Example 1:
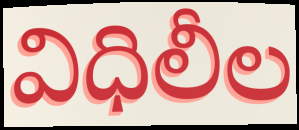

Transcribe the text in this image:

విధిలీల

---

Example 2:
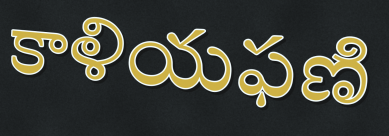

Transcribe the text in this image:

కాళియఫణి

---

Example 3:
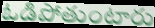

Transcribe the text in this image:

ఓడిపోతుంటారు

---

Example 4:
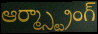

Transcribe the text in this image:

ఆర్మ్స్ట్రాంగ్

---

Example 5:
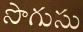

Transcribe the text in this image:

సొగుసు